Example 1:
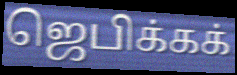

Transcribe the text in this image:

ஜெபிக்கக்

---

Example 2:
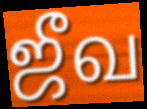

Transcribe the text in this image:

ஜீவ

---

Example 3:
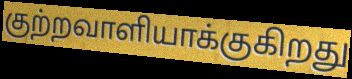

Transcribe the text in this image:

குற்றவாளியாக்குகிறது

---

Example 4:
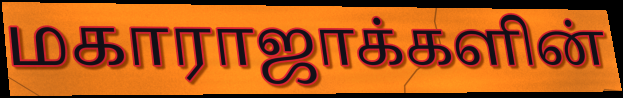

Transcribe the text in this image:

மகாராஜாக்களின்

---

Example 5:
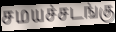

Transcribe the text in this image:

சமயச்சடங்கு